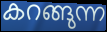
കറങ്ങുന്ന